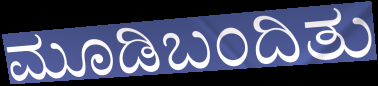
ಮೂಡಿಬಂದಿತು